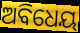
ଅବିଧେୟ